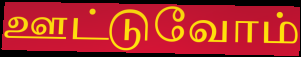
ஊட்டுவோம்